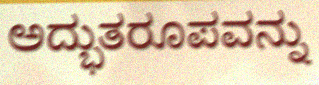
ಅದ್ಭುತರೂಪವನ್ನು